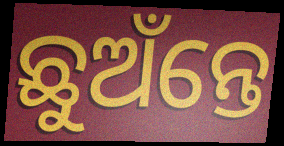
ଛୁଅଁନ୍ତେ